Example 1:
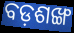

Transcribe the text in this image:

ବଡ଼ଶଙ୍ଖ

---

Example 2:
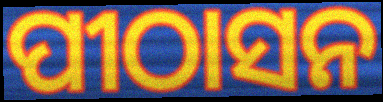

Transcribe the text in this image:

ପୀଠାସନ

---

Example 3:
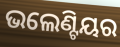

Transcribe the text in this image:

ଭଲେଣ୍ଟିୟର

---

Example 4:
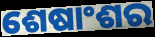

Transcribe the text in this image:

ଶେଷାଂଶର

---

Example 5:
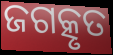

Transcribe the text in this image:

ଜଗତ୍କୃତ